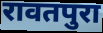
रावतपुरा